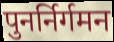
पुनर्निर्गमन